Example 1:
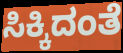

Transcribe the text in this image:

ಸಿಕ್ಕಿದಂತೆ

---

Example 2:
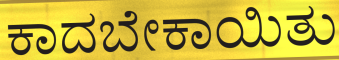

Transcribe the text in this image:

ಕಾದಬೇಕಾಯಿತು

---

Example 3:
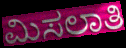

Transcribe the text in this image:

ಮಿಸಲಾತಿ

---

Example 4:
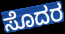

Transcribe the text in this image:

ಸೊದರ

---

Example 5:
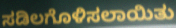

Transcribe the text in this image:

ಸಡಿಲಗೊಳಿಸಲಾಯಿತು